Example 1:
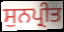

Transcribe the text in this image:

ਸੁਨਪ੍ਰੀਤ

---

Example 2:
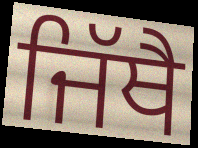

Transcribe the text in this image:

ਜਿੱਥੈ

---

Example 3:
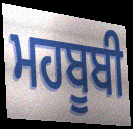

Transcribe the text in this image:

ਮਹਬੂਬੀ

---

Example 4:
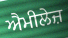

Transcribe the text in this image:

ਐਮੀਲੇਜ਼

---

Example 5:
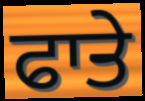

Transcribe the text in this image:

ਫਾਤੇ